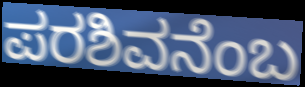
ಪರಶಿವನೆಂಬ